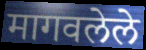
मागवलेले